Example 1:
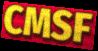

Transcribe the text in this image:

CMSF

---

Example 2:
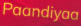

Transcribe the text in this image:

Paandiyaa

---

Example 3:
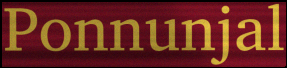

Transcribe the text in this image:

Ponnunjal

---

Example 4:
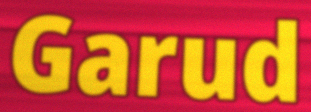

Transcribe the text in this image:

Garud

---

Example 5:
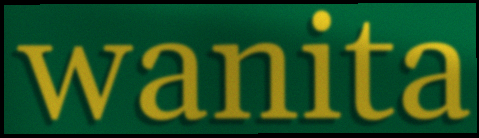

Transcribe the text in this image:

wanita